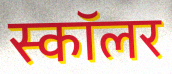
स्कॉलर